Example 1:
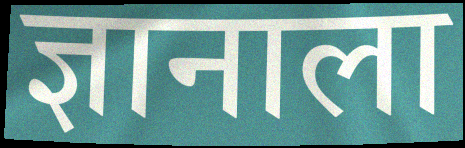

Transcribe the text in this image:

ज्ञानाला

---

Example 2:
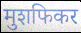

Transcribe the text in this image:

मुशफिकर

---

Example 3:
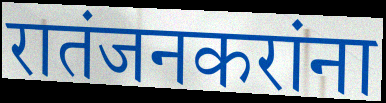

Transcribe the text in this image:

रातंजनकरांना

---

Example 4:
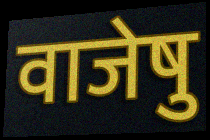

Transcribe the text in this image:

वाजेषु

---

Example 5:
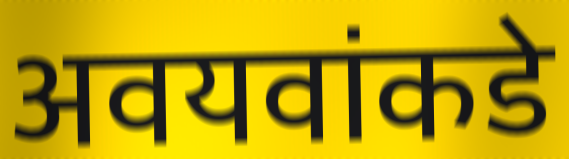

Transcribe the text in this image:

अवयवांकडे